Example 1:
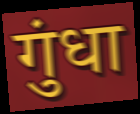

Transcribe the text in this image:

गुंधा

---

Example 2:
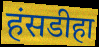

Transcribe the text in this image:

हंसडीहा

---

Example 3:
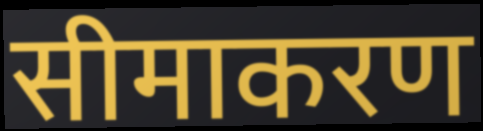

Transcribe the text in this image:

सीमाकरण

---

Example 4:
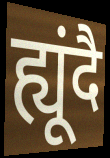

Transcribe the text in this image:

ह्यूंदै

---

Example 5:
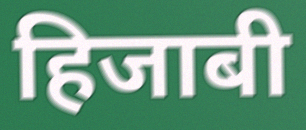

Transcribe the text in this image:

हिजाबी